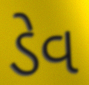
ડેવ